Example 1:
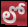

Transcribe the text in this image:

లో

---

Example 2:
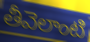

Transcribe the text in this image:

తీవెలాంటి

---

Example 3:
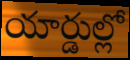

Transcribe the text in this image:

యార్డుల్లో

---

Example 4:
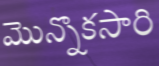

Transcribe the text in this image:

మొన్నొకసారి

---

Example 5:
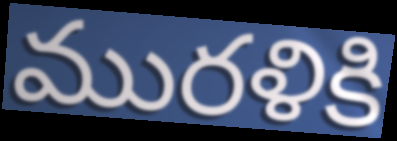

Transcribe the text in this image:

మురళికి